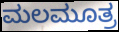
ಮಲಮೂತ್ರ